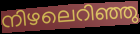
നിഴലെറിഞ്ഞു